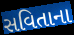
સવિતાના